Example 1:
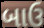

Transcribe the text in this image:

બાઉ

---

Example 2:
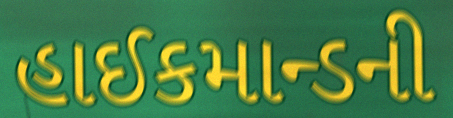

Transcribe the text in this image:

હાઈકમાન્ડની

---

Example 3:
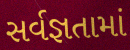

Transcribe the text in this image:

સર્વજ્ઞતામાં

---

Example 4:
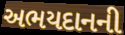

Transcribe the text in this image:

અભયદાનની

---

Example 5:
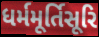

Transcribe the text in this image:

ધર્મમૂર્તિસૂરિ